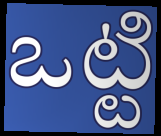
ఒట్టి